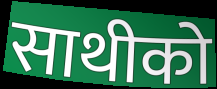
साथीको